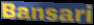
Bansari